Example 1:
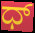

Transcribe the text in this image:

ಧ್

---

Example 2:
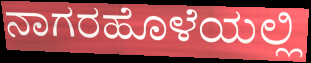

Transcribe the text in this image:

ನಾಗರಹೊಳೆಯಲ್ಲಿ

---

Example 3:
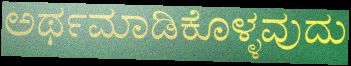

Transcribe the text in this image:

ಅರ್ಥಮಾಡಿಕೊಳ್ಳವುದು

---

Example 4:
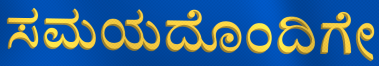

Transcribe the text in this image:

ಸಮಯದೊಂದಿಗೇ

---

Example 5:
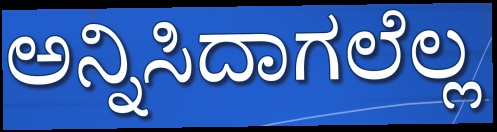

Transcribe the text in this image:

ಅನ್ನಿಸಿದಾಗಲೆಲ್ಲ